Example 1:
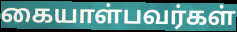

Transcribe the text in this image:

கையாள்பவர்கள்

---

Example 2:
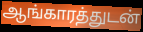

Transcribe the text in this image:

ஆங்காரத்துடன்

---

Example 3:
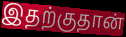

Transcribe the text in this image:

இதற்குதான்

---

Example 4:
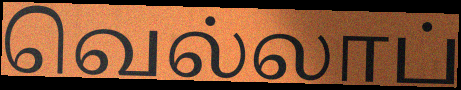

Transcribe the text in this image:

வெல்லாப்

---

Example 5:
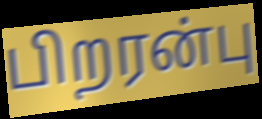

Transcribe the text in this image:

பிறரன்பு